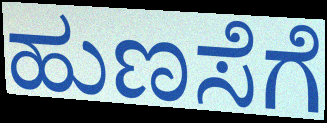
ಹುಣಸೆಗೆ